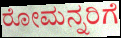
ರೋಮನ್ನರಿಗೆ